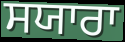
ਸਯਾਰਾ